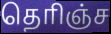
தெரிஞ்ச